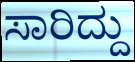
ಸಾರಿದ್ದು